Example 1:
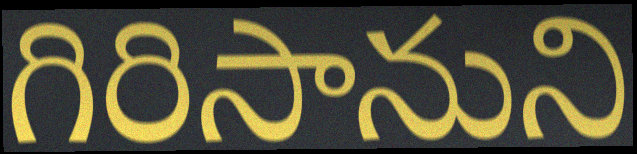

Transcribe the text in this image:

గిరిసానుని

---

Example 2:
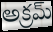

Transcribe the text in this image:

అక్రమ్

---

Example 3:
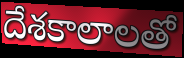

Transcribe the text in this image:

దేశకాలాలతో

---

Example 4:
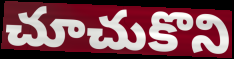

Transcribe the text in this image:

చూచుకొని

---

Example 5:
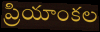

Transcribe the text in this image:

ప్రియాంకల